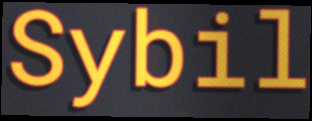
Sybil